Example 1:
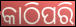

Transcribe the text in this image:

କାଠିପରି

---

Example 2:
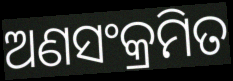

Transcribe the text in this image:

ଅଣସଂକ୍ରମିତ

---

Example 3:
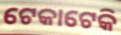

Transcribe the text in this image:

ଟେକାଟେକି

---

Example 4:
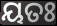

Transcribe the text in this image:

ୟତଃ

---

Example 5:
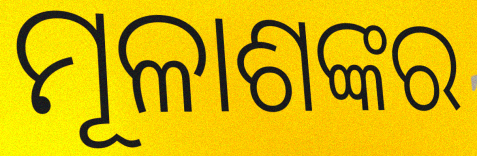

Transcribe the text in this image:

ମୂଳାଶଙ୍କର